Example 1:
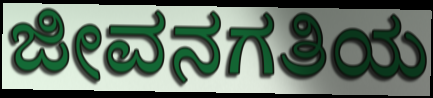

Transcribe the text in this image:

ಜೀವನಗತಿಯ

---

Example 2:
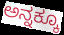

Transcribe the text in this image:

ಅನ್ನಕ್ಕೂ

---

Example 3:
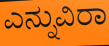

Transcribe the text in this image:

ಎನ್ನುವಿರಾ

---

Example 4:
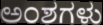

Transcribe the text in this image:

ಅಂಶಗಳು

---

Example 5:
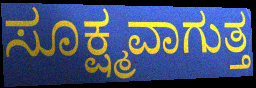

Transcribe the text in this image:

ಸೂಕ್ಷ್ಮವಾಗುತ್ತ